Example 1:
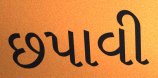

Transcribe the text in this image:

છપાવી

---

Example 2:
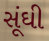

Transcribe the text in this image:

સૂંઘી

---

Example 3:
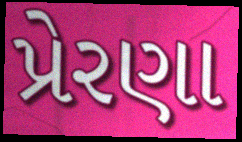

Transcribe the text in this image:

પ્રેરણા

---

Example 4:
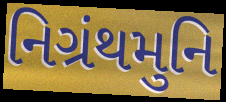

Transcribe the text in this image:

નિગ્રંથમુનિ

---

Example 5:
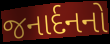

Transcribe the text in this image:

જનાર્દનનો